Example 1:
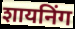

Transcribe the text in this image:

शायनिंग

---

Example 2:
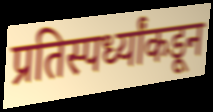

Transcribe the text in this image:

प्रतिस्पर्ध्यांकडून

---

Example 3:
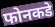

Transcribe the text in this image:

फोनकडे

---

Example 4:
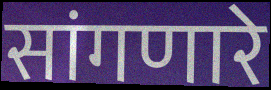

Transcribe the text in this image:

सांगणारे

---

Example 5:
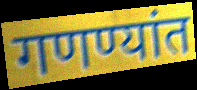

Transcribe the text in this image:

गणण्यांत